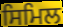
ਸਿਮਿਲ